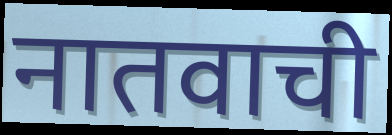
नातवाची